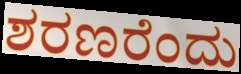
ಶರಣರೆಂದು